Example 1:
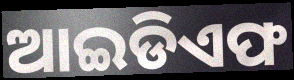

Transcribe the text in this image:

ଆଇଡିଏଫ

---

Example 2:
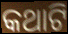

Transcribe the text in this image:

କଥାଟି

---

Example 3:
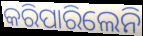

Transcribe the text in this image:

କରିପାରିଲେନି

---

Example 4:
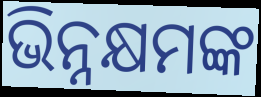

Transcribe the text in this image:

ଭିନ୍ନକ୍ଷମଙ୍କ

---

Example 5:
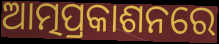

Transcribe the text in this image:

ଆତ୍ମପ୍ରକାଶନରେ